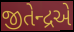
જીતેન્દ્રએ